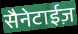
सैनेटाईज़